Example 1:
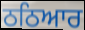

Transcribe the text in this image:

ਠਠਿਆਰ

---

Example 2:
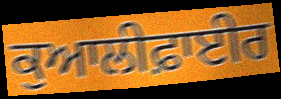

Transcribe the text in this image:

ਕੁਆਲੀਫ਼ਾਈਰ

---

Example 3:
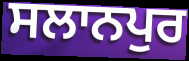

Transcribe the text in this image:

ਸਲਾਨਪੁਰ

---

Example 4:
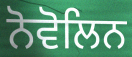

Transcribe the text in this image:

ਨੋਵੋਲਿਨ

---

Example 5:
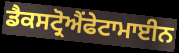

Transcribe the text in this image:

ਡੈਕਸਟ੍ਰੋਐਂਫੇਟਾਮਾਈਨ